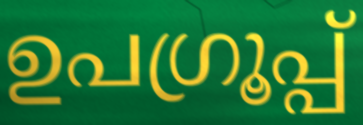
ഉപഗ്രൂപ്പ്